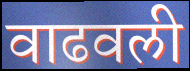
वाढवली